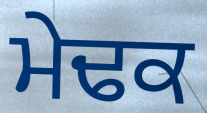
ਮੇਢਕ